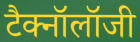
टैक्नॉलॉजी